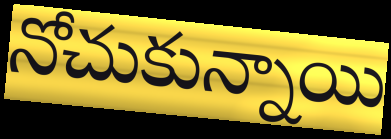
నోచుకున్నాయి